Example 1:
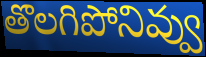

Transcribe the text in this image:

తొలగిపోనివ్వు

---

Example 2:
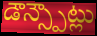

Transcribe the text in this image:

డౌన్స్పౌట్లు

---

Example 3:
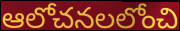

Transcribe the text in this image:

ఆలోచనలలోంచి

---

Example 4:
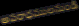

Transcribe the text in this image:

అపరాధములనుండి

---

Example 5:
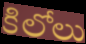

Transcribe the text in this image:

కిలోలు